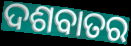
ଦଶବାତର